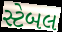
સ્ટેબલ